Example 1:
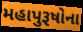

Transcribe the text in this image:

મહાપુરૂષોના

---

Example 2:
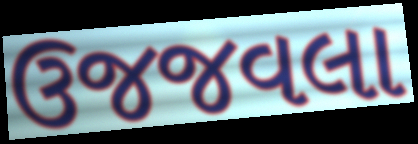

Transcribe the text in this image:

ઉજજવલા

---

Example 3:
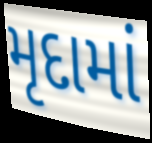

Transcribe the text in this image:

મૃદામાં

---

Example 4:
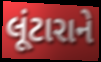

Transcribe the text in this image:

લૂંટારાને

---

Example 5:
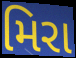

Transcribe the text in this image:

મિરા